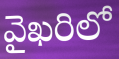
వైఖరిలో